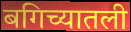
बगिच्यातली